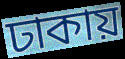
ঢাকায়